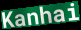
Kanhai